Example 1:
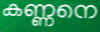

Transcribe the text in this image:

കണ്ണനെ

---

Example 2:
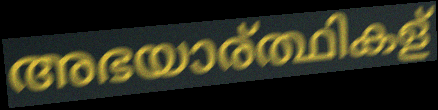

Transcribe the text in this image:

അഭയാര്ത്ഥികള്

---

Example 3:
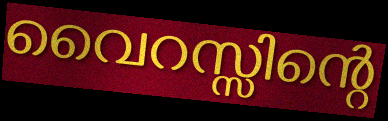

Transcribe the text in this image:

വൈറസ്സിന്റെ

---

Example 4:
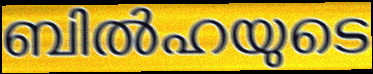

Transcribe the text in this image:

ബിൽഹയുടെ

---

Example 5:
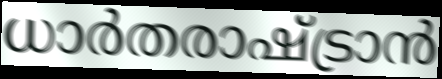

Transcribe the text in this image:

ധാർതരാഷ്ട്രാൻ